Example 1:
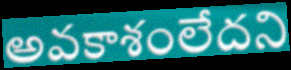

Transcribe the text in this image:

అవకాశంలేదని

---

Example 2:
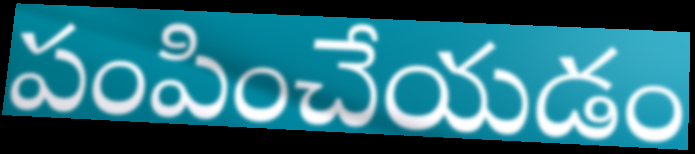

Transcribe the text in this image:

పంపించేయడం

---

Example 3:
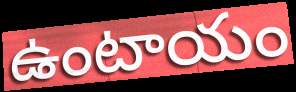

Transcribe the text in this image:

ఉంటాయం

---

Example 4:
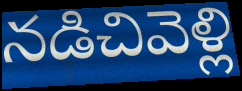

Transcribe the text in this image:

నడిచివెళ్లి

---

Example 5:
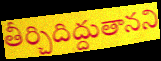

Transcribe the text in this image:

తీర్చిదిద్దుతానని